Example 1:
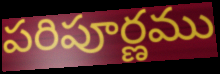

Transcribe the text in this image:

పరిపూర్ణము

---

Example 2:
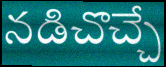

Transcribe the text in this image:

నడిచొచ్చే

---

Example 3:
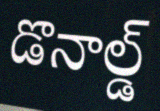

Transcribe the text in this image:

డొనాల్డ్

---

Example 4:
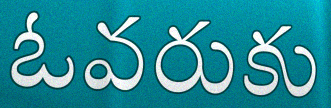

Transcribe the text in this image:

ఓవరుకు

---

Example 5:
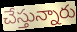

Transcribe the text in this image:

చేస్తున్నారు